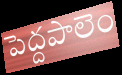
పెద్దపాలెం